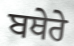
ਬਥੇਰੇ